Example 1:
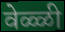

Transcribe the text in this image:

वेळ्ळी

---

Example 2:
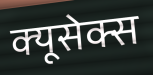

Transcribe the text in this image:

क्यूसेक्स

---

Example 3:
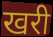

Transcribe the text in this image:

खरी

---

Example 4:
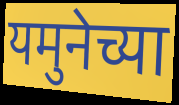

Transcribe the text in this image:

यमुनेच्या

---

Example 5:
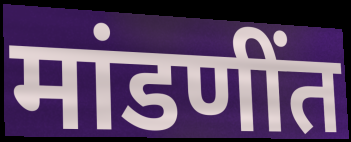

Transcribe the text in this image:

मांडणींत